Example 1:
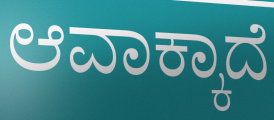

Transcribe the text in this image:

ಆವಾಕ್ಕಾದೆ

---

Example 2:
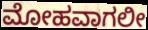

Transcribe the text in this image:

ಮೋಹವಾಗಲೀ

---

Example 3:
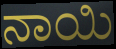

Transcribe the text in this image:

ನಾಯಿ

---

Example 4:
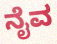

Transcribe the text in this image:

ನೈವ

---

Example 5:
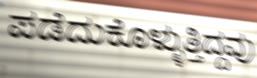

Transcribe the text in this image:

ಪಡೆದುಕೊಳ್ಳುತ್ತಿದ್ದವು